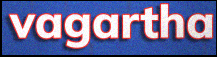
vagartha